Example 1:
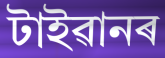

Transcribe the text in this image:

টাইৱানৰ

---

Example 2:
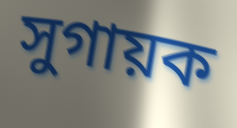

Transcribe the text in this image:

সুগায়ক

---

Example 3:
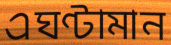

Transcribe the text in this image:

এঘণ্টামান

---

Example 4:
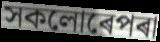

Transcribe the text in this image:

সকলোৰেপৰা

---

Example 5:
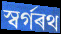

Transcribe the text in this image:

স্বৰ্গৰথ